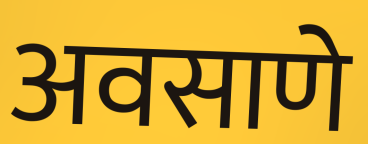
अवसाणे